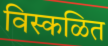
विस्कळित